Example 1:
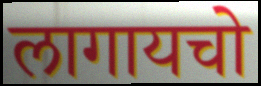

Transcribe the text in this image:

लागायचो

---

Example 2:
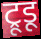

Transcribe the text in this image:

ट्रूडू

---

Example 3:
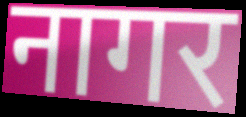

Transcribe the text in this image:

नागर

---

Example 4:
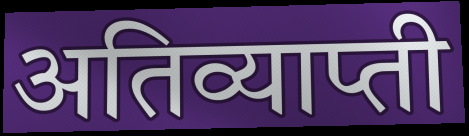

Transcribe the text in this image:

अतिव्याप्ती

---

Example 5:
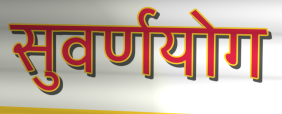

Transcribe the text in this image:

सुवर्णयोग